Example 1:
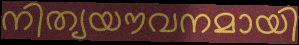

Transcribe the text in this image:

നിത്യയൗവനമായി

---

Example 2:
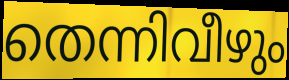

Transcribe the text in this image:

തെന്നിവീഴും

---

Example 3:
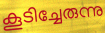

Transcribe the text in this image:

കൂടിച്ചേരുന്നു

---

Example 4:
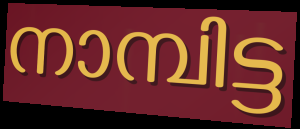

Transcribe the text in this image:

നാമ്പിട്ട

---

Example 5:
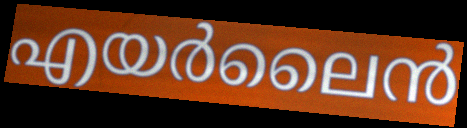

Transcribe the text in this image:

എയർലൈൻ